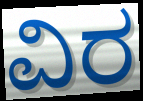
ವಿರ